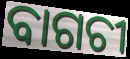
ବାଗଚୀ